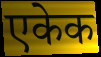
एकेक